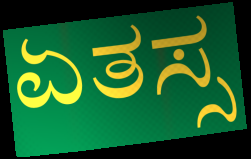
ಏತಸ್ಸ